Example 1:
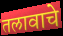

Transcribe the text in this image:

तलावाचे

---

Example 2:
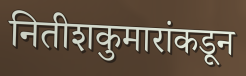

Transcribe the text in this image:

नितीशकुमारांकडून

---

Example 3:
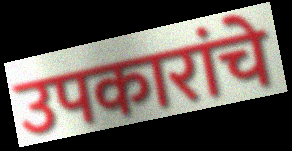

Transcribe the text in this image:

उपकारांचे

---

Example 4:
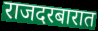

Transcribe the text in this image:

राजदरबारात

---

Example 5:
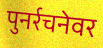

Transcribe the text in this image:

पुनर्रचनेवर